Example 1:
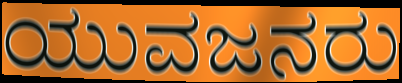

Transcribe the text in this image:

ಯುವಜನರು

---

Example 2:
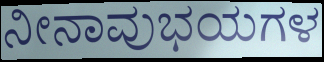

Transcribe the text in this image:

ನೀನಾವುಭಯಗಳ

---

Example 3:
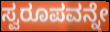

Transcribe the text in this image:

ಸ್ವರೂಪವನ್ನೇ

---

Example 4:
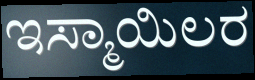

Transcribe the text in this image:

ಇಸ್ಮಾಯಿಲರ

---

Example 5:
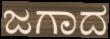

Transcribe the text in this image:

ಜಗಾದ